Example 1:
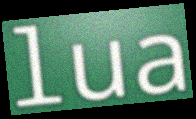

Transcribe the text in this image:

lua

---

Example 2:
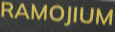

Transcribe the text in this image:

RAMOJIUM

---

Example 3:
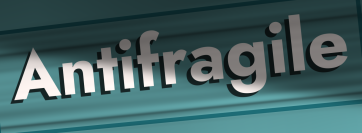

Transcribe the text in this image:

Antifragile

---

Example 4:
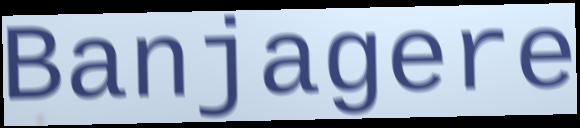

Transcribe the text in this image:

Banjagere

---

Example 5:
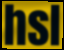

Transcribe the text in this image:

hsl